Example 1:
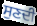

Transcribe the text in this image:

ਸੁਣਦੀ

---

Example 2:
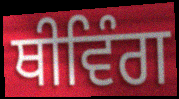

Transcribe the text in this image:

ਥੀਵਿੰਗ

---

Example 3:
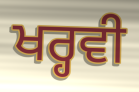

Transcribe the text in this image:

ਖਰ੍ਹਵੀ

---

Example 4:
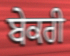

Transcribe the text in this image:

ਬੇਕਰੀ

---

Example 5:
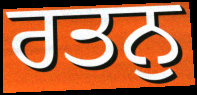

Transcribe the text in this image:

ਰਤਨੁ